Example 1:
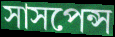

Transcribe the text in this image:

সাসপেন্স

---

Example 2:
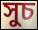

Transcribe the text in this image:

সুচ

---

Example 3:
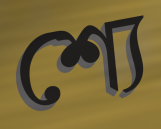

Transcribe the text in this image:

শ্যে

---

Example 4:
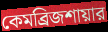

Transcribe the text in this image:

কেমব্রিজশায়ার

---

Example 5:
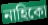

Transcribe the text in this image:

নাহিকো